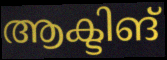
ആക്ടിങ്